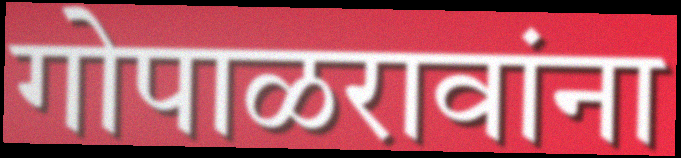
गोपाळरावांना